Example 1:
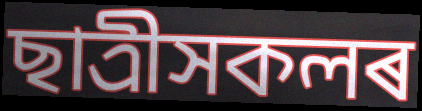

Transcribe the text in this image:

ছাত্ৰীসকলৰ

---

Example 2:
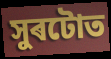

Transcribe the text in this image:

সুৰটোত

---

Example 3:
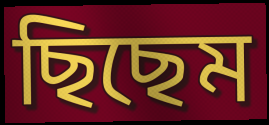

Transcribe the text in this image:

ছিছেম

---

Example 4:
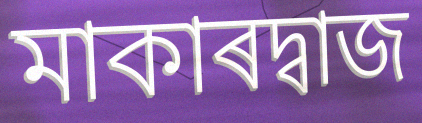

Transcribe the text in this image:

মাকাৰদ্বাজ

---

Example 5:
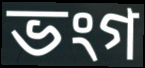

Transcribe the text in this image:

ভংগ